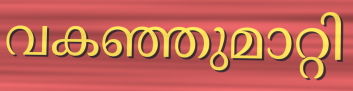
വകഞ്ഞുമാറ്റി